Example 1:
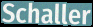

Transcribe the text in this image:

Schaller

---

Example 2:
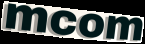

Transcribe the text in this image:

mcom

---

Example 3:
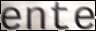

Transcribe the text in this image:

ente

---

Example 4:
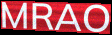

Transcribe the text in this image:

MRAO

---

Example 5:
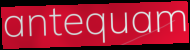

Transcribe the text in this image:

antequam